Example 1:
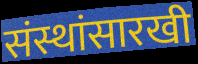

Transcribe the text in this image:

संस्थांसारखी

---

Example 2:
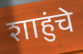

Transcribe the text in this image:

शाहुंचे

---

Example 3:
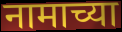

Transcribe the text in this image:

नामाच्या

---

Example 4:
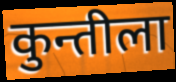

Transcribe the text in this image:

कुन्तीला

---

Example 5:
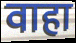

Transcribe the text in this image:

वाहा